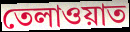
তেলাওয়াত